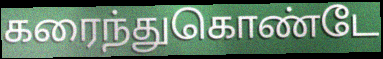
கரைந்துகொண்டே